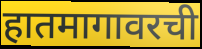
हातमागावरची